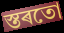
স্তৰতো